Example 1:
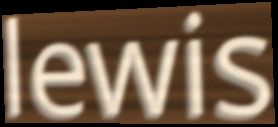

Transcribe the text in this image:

lewis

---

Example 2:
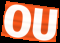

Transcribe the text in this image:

OU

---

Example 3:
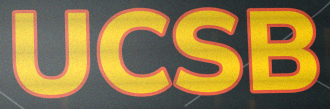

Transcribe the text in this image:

UCSB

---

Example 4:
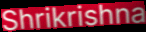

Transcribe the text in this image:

Shrikrishna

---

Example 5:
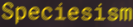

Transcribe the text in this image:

Speciesism